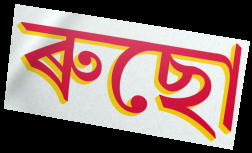
ৰুছো